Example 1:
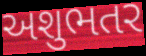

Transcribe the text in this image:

અશુભતર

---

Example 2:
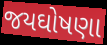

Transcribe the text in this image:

જયઘોષણા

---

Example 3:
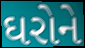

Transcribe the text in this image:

ઘરોને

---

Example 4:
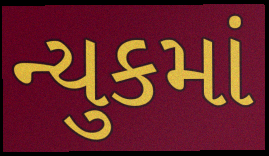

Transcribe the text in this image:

ન્યુકમાં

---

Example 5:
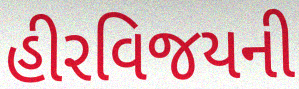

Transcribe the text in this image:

હીરવિજયની